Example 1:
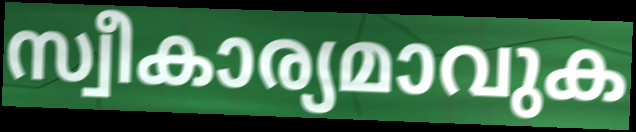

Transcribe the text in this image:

സ്വീകാര്യമാവുക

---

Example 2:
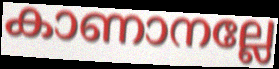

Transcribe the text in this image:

കാണാനല്ലേ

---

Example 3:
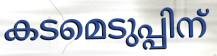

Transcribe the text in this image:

കടമെടുപ്പിന്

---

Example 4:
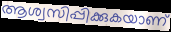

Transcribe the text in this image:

ആശ്വസിപ്പിക്കുകയാണ്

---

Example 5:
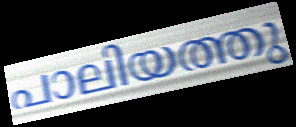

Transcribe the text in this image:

പാലിയത്തു